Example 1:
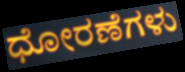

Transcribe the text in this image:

ಧೋರಣೆಗಳು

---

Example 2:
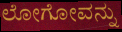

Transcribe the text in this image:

ಲೋಗೋವನ್ನು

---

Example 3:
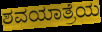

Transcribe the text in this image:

ಶವಯಾತ್ರೆಯ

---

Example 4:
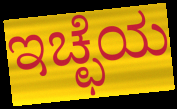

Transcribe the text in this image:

ಇಚ್ಛೆಯ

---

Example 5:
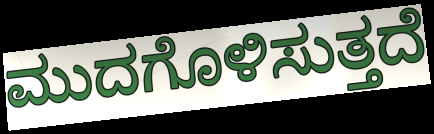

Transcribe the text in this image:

ಮುದಗೊಳಿಸುತ್ತದೆ